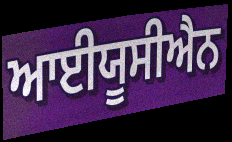
ਆਈਯੂਸੀਐਨ